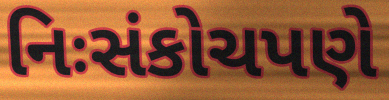
નિઃસંકોચપણે